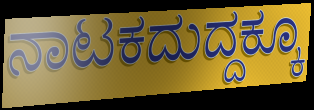
ನಾಟಕದುದ್ದಕ್ಕೂ